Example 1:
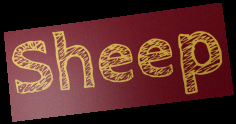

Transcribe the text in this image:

Sheep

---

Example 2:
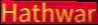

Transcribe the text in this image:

Hathwar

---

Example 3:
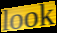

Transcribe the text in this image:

look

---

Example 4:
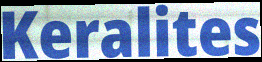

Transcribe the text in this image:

Keralites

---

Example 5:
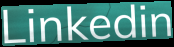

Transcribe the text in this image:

Linkedin